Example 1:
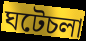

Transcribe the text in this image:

ঘটেচলা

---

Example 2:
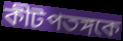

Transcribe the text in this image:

কীটপতঙ্গকে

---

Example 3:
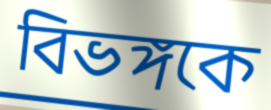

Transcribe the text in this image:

বিভঙ্গকে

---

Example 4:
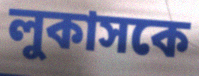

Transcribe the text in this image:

লুকাসকে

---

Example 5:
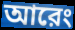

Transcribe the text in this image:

আরেং